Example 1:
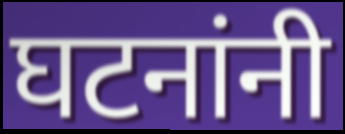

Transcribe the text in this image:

घटनांनी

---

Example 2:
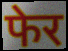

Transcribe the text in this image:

फेर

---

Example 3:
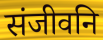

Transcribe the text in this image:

संजीवनि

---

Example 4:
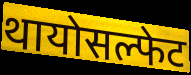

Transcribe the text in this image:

थायोसल्फेट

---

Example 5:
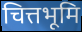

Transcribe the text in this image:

चित्तभूमि